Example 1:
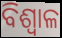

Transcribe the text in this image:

ବିଶ୍ୱାଳ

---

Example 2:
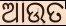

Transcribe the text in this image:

ଆଉତ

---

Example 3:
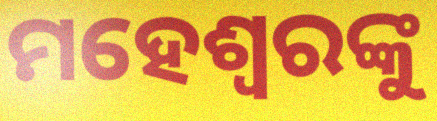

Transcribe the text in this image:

ମହେଶ୍ଵରଙ୍କୁ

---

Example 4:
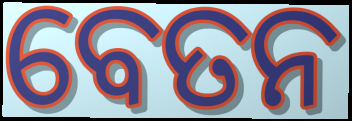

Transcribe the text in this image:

ବେତନ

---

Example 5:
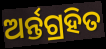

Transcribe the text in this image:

ଅର୍ନ୍ତଗ୍ରହିତ